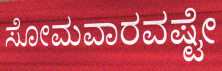
ಸೋಮವಾರವಷ್ಟೇ